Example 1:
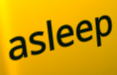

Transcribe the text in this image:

asleep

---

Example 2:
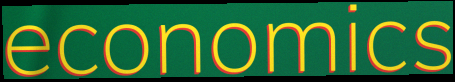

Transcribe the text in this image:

economics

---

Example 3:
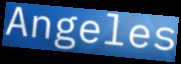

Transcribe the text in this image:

Angeles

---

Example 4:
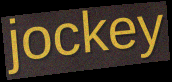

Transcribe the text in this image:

jockey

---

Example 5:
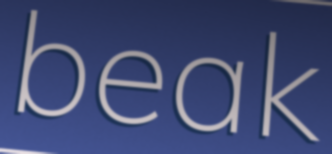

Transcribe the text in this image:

beak